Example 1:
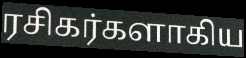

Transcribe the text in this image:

ரசிகர்களாகிய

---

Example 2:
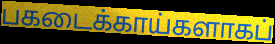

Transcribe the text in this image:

பகடைக்காய்களாகப்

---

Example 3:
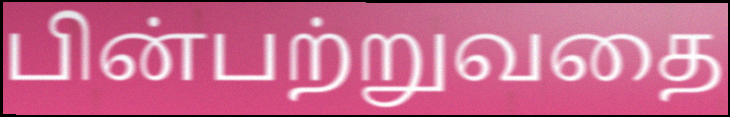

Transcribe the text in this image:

பின்பற்றுவதை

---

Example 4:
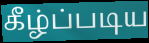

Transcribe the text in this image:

கீழ்ப்படிய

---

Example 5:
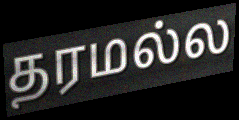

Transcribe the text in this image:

தரமல்ல